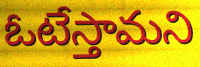
ఓటేస్తామని